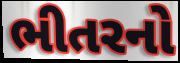
ભીતરનો